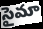
సైమా